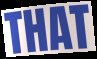
THAT